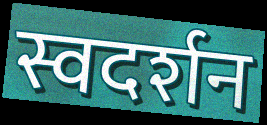
स्वदर्शन